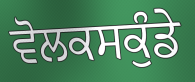
ਵੋਲਕਸਕੁੰਡੇ